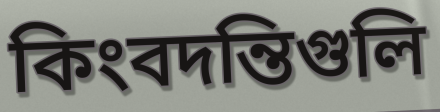
কিংবদন্তিগুলি